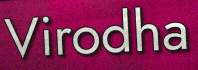
Virodha